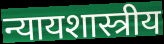
न्यायशास्त्रीय